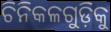
ଚିନିକଳଗୁଡ଼ିକୁ